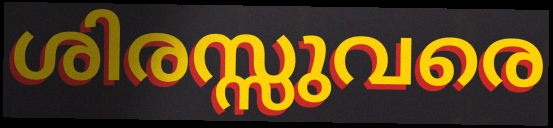
ശിരസ്സുവരെ